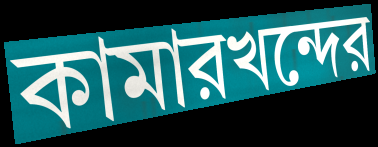
কামারখন্দের